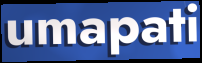
umapati